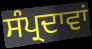
ਸੰਪ੍ਰਦਾਵਾਂ